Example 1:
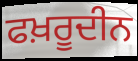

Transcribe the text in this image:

ਫਖ਼ਰੂਦੀਨ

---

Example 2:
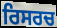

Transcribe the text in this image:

ਰਿਸਰਚ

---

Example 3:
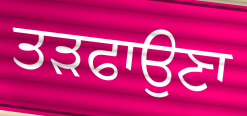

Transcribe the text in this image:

ਤੜਫਾਉਣਾ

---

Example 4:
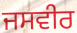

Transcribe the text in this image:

ਜਸਵੀਰ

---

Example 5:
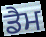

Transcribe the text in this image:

ਡੈਮ